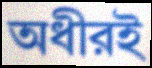
অধীরই